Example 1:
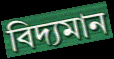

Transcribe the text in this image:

বিদ্যমান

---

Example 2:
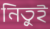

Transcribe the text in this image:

নিতুই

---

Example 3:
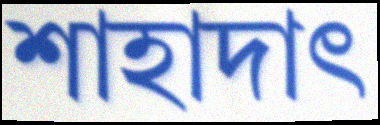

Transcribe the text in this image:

শাহাদাৎ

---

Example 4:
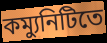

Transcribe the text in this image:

কম্যুনিটিতে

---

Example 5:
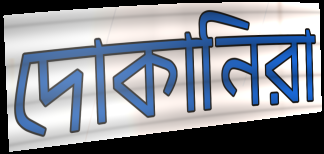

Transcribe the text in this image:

দোকানিরা